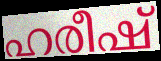
ഹരീഷ്